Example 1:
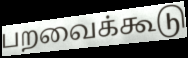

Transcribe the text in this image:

பறவைக்கூடு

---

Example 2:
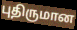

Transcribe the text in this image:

புதிருமான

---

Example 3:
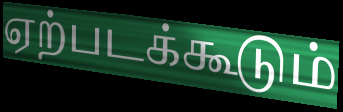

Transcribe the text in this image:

ஏற்படக்கூடும்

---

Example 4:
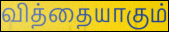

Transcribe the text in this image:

வித்தையாகும்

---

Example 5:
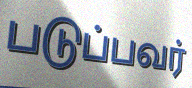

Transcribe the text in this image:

படுப்பவர்